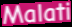
Malati